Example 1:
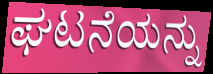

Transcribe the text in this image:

ಘಟನೆಯನ್ನು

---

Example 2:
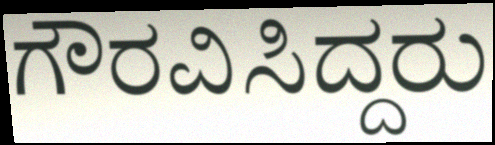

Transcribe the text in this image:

ಗೌರವಿಸಿದ್ದರು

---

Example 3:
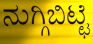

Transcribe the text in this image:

ನುಗ್ಗಿಬಿಟ್ಟೆ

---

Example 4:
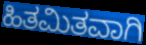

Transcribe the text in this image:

ಹಿತಮಿತವಾಗಿ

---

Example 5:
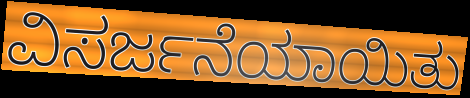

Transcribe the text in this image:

ವಿಸರ್ಜನೆಯಾಯಿತು